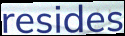
resides